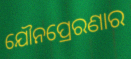
ଯୌନପ୍ରେରଣାର